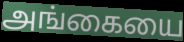
அங்கையை